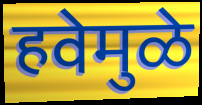
हवेमुळे